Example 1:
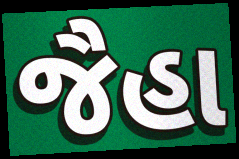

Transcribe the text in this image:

જૈહા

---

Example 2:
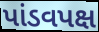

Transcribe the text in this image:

પાંડવપક્ષ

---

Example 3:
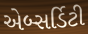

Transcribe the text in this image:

એબ્સર્ડિટી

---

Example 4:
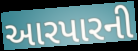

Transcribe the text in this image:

આરપારની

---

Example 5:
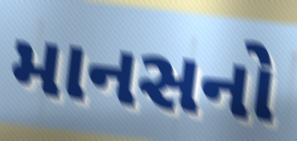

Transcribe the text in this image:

માનસનો